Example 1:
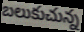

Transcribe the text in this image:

బలుకుచున్న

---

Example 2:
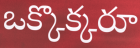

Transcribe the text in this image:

ఒక్కొక్కరూ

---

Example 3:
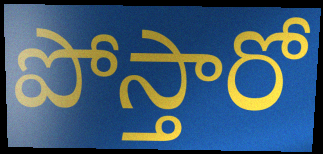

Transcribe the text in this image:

పోస్తారో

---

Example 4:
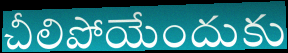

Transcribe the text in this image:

చీలిపోయేందుకు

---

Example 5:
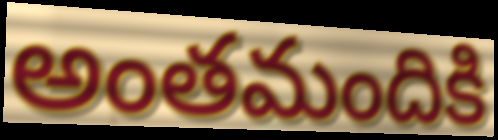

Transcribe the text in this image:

అంతమందికి